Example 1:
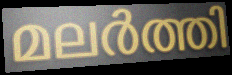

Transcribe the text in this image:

മലർത്തി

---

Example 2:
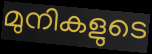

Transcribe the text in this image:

മുനികളുടെ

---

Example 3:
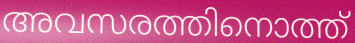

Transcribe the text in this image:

അവസരത്തിനൊത്ത്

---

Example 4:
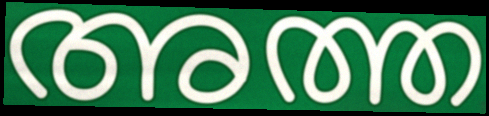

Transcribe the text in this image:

അത്ത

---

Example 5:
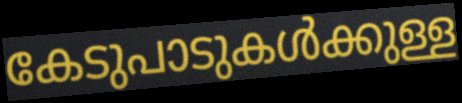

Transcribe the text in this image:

കേടുപാടുകൾക്കുള്ള